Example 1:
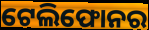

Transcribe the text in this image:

ଟେଲିଫୋନର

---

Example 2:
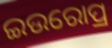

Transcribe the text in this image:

ଇଉରୋପ୍ର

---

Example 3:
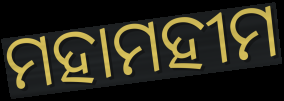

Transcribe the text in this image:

ମହାମହୀମ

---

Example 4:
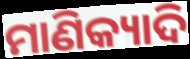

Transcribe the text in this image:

ମାଣିକ୍ୟାଦି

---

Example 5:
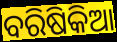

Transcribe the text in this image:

ବରିଷିକିଆ